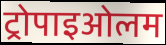
ट्रोपाइओलम